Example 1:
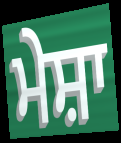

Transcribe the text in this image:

ਮੇਸ਼ਾ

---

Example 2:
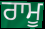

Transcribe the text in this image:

ਰਾਮੂ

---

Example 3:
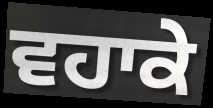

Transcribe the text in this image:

ਵਹਾਕੇ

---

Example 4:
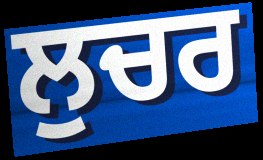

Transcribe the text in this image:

ਲੁਚਰ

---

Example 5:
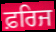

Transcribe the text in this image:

ਫ਼ਰਿਜ